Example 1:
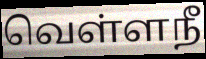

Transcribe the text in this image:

வெள்ளநீ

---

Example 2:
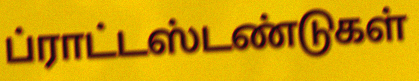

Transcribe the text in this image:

ப்ராட்டஸ்டண்டுகள்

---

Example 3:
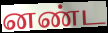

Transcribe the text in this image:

னண்ட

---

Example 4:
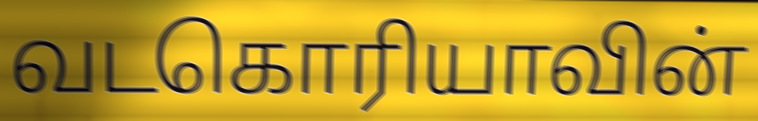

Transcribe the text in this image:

வடகொரியாவின்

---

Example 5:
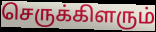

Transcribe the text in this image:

செருக்கிளரும்